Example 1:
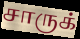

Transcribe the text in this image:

சாருக்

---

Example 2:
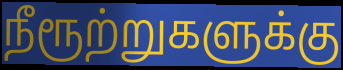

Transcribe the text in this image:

நீரூற்றுகளுக்கு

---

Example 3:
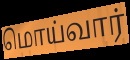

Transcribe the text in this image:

மொய்வார்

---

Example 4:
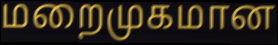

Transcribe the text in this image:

மறைமுகமான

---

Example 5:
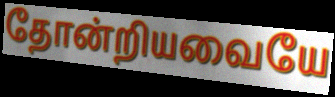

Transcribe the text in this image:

தோன்றியவையே